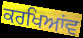
ਕਰਖਿਆਂਵ